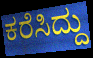
ಕರೆಸಿದ್ದು